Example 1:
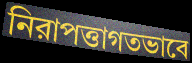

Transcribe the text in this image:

নিরাপত্তাগতভাবে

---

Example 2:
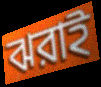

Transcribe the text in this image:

ঝরাই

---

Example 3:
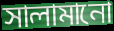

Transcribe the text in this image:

সালামানো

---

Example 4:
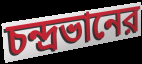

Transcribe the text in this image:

চন্দ্রভানের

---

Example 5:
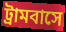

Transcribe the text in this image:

ট্রামবাসে